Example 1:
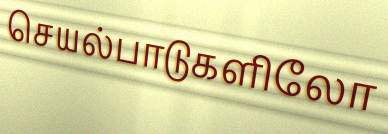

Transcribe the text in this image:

செயல்பாடுகளிலோ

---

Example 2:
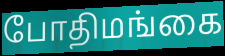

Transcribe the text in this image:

போதிமங்கை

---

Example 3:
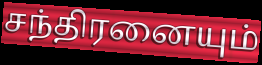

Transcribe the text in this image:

சந்திரனையும்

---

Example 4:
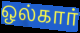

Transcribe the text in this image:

ஒல்கார்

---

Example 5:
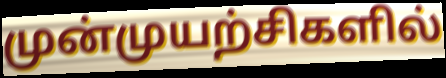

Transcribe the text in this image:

முன்முயற்சிகளில்